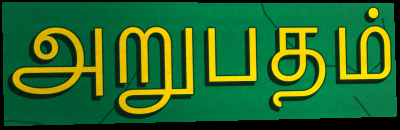
அறுபதம்